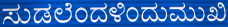
ಸುಡಲೆಂದಳಿಂದುಮುಖಿ